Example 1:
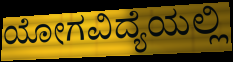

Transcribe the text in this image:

ಯೋಗವಿದ್ಯೆಯಲ್ಲಿ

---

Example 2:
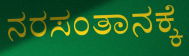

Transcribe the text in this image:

ನರಸಂತಾನಕ್ಕೆ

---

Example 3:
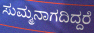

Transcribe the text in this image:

ಸುಮ್ಮನಾಗದಿದ್ದರೆ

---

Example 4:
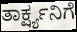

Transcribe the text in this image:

ತಾರ್ಕ್ಷ್ಯನಿಗೆ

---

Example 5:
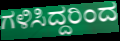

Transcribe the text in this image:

ಗಳಿಸಿದ್ದರಿಂದ